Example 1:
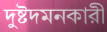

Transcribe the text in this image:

দুষ্টদমনকারী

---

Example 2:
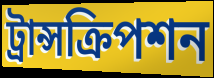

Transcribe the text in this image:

ট্রান্সক্রিপশন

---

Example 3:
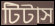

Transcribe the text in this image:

টিটাস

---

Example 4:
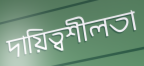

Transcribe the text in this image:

দায়িত্বশীলতা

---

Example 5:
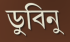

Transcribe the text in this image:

ডুবিনু